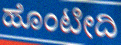
ಹೊಂಟೀದಿ